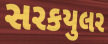
સરકયુલર